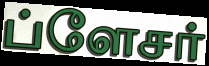
ப்ளேசர்